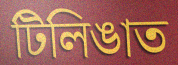
টিলিঙাত